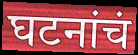
घटनांचं